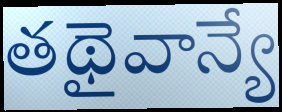
తథైవాన్యే